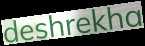
deshrekha